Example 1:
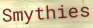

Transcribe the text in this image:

Smythies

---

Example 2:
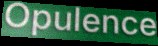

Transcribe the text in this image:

Opulence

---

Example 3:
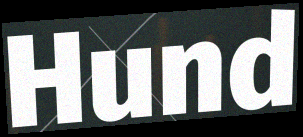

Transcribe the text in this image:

Hund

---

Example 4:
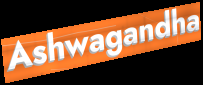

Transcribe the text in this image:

Ashwagandha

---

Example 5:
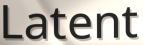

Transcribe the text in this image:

Latent